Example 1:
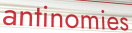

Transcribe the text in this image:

antinomies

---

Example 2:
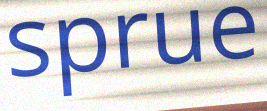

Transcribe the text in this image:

sprue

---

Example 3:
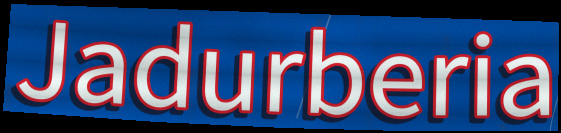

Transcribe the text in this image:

Jadurberia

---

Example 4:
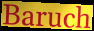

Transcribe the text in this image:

Baruch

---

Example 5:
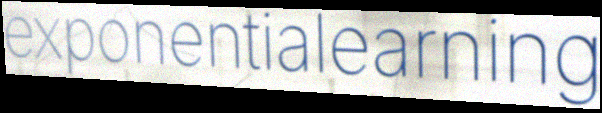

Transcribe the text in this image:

exponentialearning